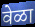
वेळा